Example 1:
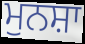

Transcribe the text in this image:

ਮੁਨਸ਼ਾ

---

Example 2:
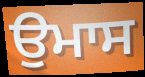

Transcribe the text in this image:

ਉਮਾਸ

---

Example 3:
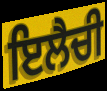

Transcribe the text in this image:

ਇਲੈਚੀ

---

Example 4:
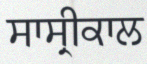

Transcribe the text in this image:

ਸਾਸ੍ਰੀਕਾਲ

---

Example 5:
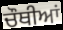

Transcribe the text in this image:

ਚੌਥੀਆਂ